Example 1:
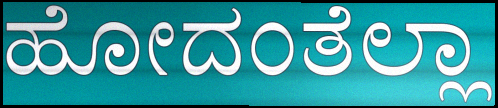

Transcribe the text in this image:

ಹೋದಂತೆಲ್ಲಾ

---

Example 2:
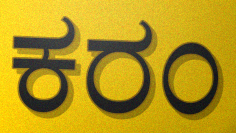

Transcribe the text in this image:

ಕರಂ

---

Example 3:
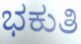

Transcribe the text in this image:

ಭಕುತಿ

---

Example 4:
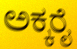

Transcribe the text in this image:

ಅಕ್ಕರೈ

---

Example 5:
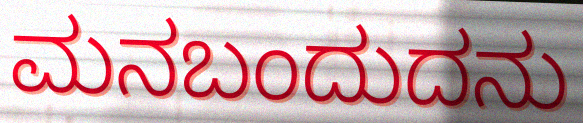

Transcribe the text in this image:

ಮನಬಂದುದನು